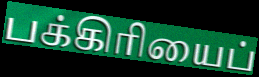
பக்கிரியைப்